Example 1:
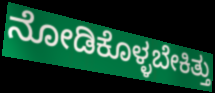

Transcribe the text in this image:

ನೋಡಿಕೊಳ್ಳಬೇಕಿತ್ತು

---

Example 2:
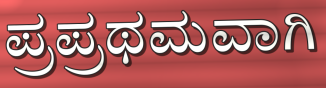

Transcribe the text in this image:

ಪ್ರಪ್ರಥಮವಾಗಿ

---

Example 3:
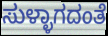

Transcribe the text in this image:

ಸುಳ್ಳಾಗದಂತೆ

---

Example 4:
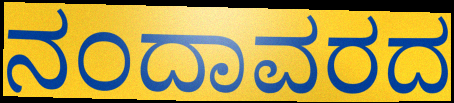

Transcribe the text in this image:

ನಂದಾವರದ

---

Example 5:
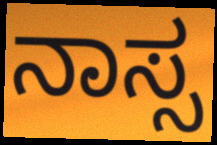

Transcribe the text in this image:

ನಾಸ್ಸ